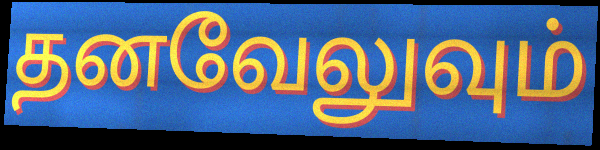
தனவேலுவும்